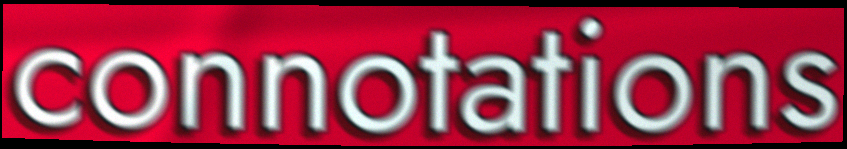
connotations